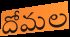
దోమల